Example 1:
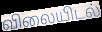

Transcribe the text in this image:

விலையிடல்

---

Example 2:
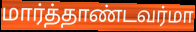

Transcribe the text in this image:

மார்த்தாண்டவர்மா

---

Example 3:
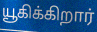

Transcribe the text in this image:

யூகிக்கிறார்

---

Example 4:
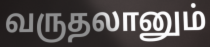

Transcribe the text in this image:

வருதலானும்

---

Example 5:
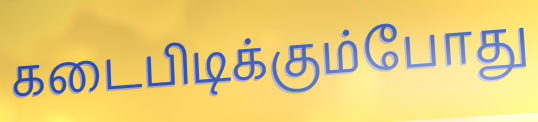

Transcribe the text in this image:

கடைபிடிக்கும்போது